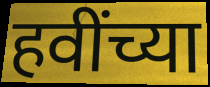
हवींच्या